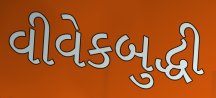
વીવેકબુદ્ધી